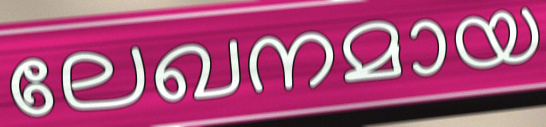
ലേഖനമായ